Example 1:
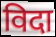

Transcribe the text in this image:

विदा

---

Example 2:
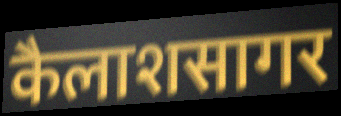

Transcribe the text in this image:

कैलाशसागर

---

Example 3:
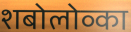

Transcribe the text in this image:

शबोलोव्का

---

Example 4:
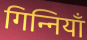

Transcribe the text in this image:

गिन्नियाँ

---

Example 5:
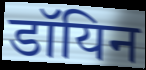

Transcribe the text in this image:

डॉयिन